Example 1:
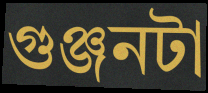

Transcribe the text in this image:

গুঞ্জনটা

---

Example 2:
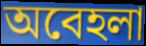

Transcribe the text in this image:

অবেহলা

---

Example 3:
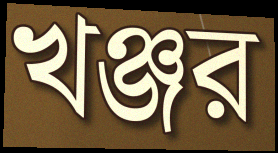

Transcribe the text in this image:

খঞ্জর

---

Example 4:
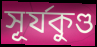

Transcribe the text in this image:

সূর্যকুণ্ড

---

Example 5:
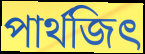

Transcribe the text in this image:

পার্থজিৎ